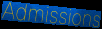
Admissions